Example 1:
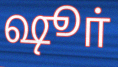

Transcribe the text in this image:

ஷூர்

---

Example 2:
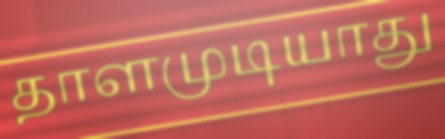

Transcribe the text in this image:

தாளமுடியாது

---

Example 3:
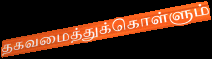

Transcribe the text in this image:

தகவமைத்துக்கொள்ளும்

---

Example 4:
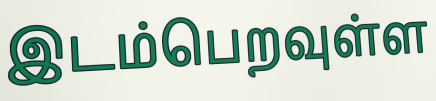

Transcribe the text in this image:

இடம்பெறவுள்ள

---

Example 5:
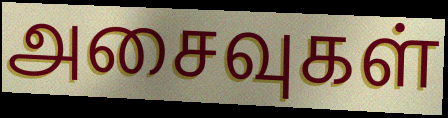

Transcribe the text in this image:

அசைவுகள்